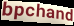
bpchand